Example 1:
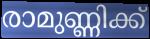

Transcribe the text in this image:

രാമുണ്ണിക്ക്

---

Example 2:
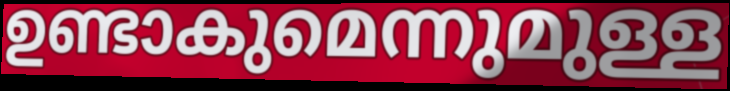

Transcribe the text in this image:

ഉണ്ടാകുമെന്നുമുള്ള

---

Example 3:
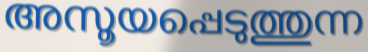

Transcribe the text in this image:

അസൂയപ്പെടുത്തുന്ന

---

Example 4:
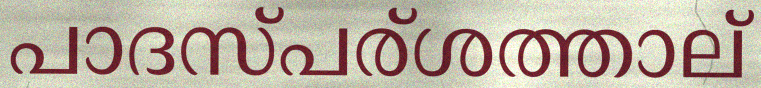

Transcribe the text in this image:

പാദസ്പര്ശത്താല്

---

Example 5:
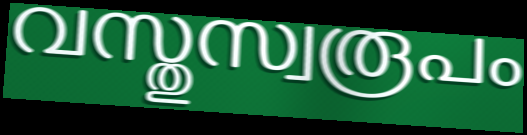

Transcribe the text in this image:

വസ്തുസ്വരൂപം